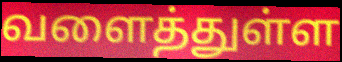
வளைத்துள்ள